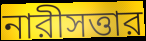
নারীসত্তার